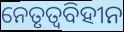
ନେତୃତ୍ୱବିହୀନ